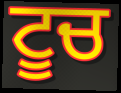
ਟੂਚ